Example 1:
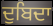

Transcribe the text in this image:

ਦੁਬਿਦਾ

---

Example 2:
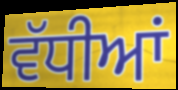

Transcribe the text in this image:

ਵੱਧੀਆਂ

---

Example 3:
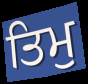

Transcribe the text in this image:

ਤਿਮੁ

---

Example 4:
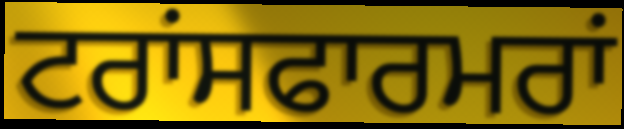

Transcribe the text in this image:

ਟਰਾਂਸਫਾਰਮਰਾਂ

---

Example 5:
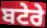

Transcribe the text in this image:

ਬਟੇਰੇ